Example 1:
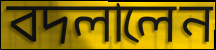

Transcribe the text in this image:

বদলালেন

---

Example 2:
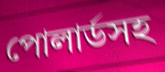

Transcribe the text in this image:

পোলার্ডসহ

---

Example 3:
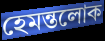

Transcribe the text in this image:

হেমন্তলোক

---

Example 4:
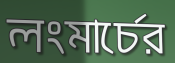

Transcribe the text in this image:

লংমার্চের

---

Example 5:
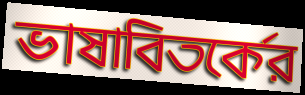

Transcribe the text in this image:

ভাষাবিতর্কের